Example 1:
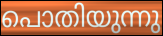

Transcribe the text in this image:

പൊതിയുന്നു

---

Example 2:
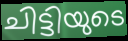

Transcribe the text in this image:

ചിട്ടിയുടെ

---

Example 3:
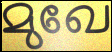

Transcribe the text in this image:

മുഖേ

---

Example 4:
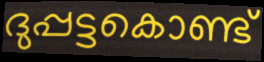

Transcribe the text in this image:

ദുപ്പട്ടകൊണ്ട്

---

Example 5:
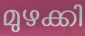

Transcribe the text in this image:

മുഴക്കി